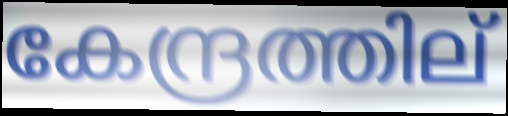
കേന്ദ്രത്തില്